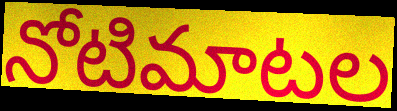
నోటిమాటల